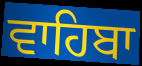
ਵਾਹਿਬਾ